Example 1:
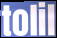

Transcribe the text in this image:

tolil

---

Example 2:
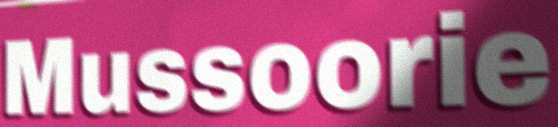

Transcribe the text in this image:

Mussoorie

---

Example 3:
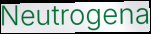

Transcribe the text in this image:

Neutrogena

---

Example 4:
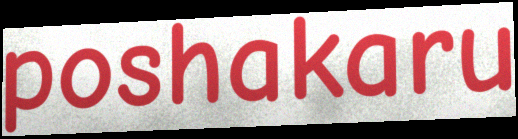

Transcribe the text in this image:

poshakaru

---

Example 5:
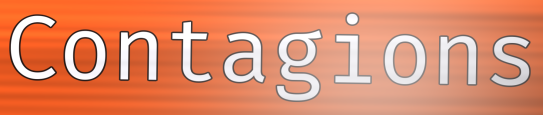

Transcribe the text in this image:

Contagions